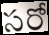
సరో